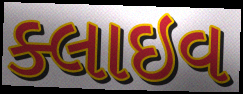
ક્લાઇવ